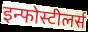
इन्फोस्टीलर्स